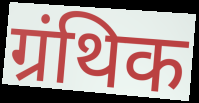
ग्रंथिक